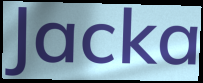
Jacka